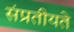
संप्रतीयते